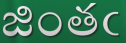
జింతఁ